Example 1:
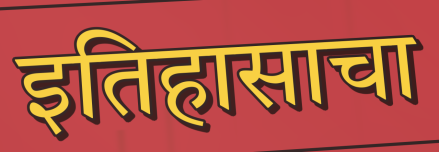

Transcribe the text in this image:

इतिहासाचा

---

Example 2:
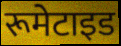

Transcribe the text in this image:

रूमेटाइड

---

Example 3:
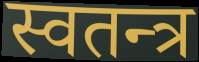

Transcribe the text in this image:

स्वतन्त्र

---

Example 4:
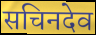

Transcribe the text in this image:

सचिनदेव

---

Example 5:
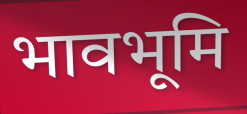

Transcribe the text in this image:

भावभूमि